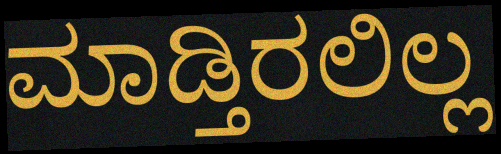
ಮಾಡ್ತಿರಲಿಲ್ಲ